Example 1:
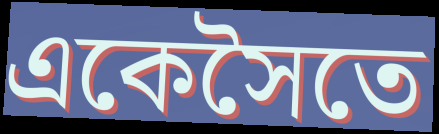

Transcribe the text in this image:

একেসৈতে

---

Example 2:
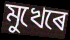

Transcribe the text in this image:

মুখেৰে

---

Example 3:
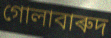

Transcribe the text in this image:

গোলাবাৰুদ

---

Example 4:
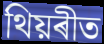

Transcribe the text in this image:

থিয়ৰীত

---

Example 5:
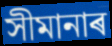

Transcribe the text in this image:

সীমানাৰ